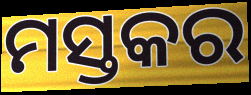
ମସ୍ତକର